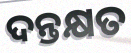
ଦନ୍ତକ୍ଷତ